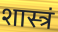
शास्त्रं